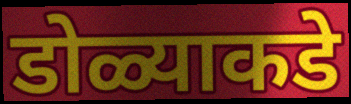
डोळ्याकडे